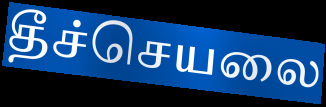
தீச்செயலை